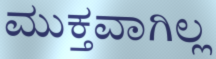
ಮುಕ್ತವಾಗಿಲ್ಲ